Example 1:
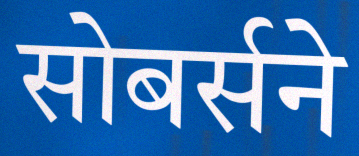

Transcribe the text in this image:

सोबर्सने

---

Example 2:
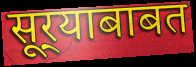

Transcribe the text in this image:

सूर्याबाबत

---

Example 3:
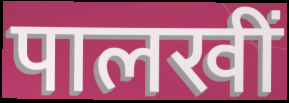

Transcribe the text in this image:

पालखीं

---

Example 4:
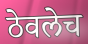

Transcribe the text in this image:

ठेवलेच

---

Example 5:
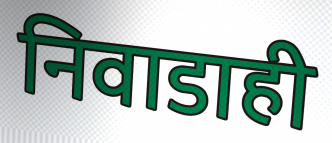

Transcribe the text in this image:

निवाडाही